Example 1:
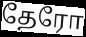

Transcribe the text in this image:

தேரோ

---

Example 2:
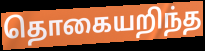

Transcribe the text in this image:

தொகையறிந்த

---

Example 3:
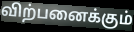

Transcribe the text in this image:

விற்பனைக்கும்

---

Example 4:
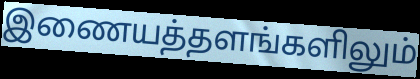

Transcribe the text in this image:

இணையத்தளங்களிலும்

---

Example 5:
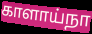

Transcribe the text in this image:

காளாய்நா